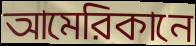
আমেরিকানে